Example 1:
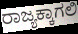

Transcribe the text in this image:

ರಾಜ್ಯಕ್ಕಾಗಲಿ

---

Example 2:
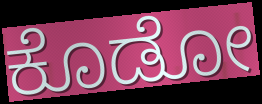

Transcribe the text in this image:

ಕೊಡೋ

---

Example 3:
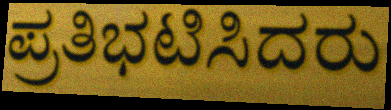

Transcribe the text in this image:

ಪ್ರತಿಭಟಿಸಿದರು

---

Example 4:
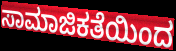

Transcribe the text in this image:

ಸಾಮಾಜಿಕತೆಯಿಂದ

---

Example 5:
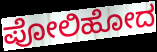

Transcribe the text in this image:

ಪೋಲಿಹೋದ